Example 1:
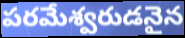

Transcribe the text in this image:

పరమేశ్వరుడనైన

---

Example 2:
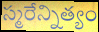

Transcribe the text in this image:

స్మరేన్నిత్యం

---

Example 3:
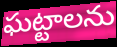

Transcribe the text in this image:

ఘట్టాలను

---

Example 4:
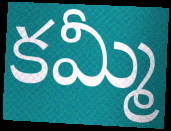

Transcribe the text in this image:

కమ్మీ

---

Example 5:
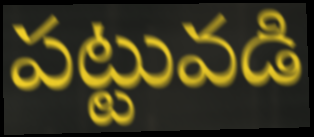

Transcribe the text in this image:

పట్టువడి